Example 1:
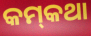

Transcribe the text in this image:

କମ୍‌କଥା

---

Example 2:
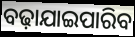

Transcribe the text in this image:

ବଢ଼ାଯାଇପାରିବ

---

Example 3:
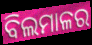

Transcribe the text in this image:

ବିଲମାଳର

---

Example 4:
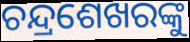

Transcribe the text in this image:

ଚନ୍ଦ୍ରଶେଖରଙ୍କୁ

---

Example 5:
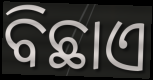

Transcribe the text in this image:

ବିଛାଏ